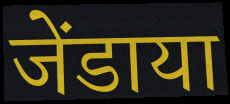
जेंडाया